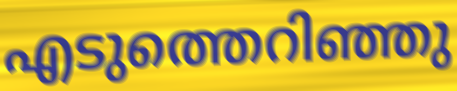
എടുത്തെറിഞ്ഞു